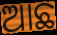
ଆଛ